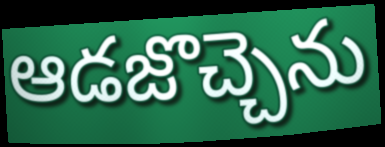
ఆడజొచ్చెను